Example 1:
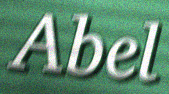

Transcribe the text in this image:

Abel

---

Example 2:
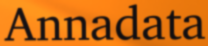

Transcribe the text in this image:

Annadata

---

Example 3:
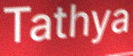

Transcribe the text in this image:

Tathya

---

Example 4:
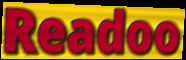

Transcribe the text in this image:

Readoo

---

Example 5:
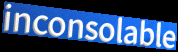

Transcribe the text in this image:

inconsolable